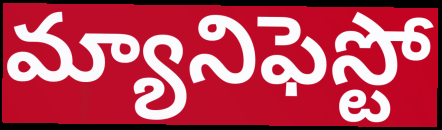
మ్యానిఫెస్టో